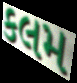
કલમ